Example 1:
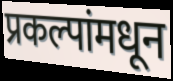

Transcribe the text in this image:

प्रकल्पांमधून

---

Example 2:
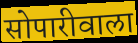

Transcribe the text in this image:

सोपारीवाला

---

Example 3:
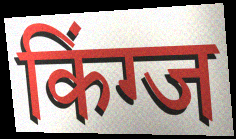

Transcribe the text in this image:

किंग्ज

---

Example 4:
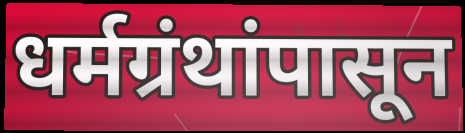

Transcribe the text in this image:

धर्मग्रंथांपासून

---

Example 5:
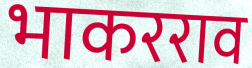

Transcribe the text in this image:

भाकरराव